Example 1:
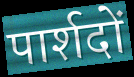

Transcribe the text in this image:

पार्शदों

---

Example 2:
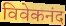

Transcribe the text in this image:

विवेकनंद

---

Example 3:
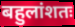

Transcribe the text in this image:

बहुलांशतः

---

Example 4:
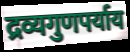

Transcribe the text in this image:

द्रव्यगुणपर्याय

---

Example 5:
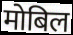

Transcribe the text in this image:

मोबिल